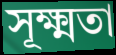
সূক্ষ্মতা